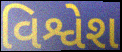
વિશ્વેશ